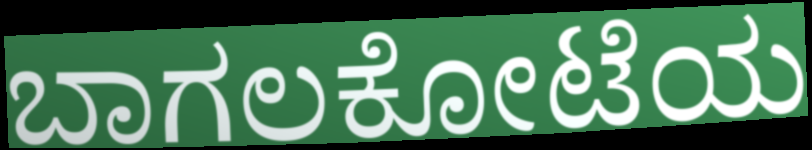
ಬಾಗಲಕೋಟೆಯ